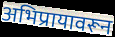
अभिप्रायावरून